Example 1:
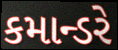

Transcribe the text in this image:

કમાન્ડરે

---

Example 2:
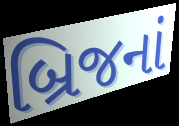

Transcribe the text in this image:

બ્રિજનાં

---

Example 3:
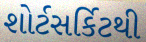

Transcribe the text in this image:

શોર્ટસર્કિટથી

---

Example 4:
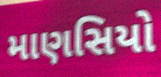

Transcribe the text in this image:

માણસિયો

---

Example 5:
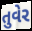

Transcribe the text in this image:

તુવેર